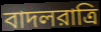
বাদলরাত্রি